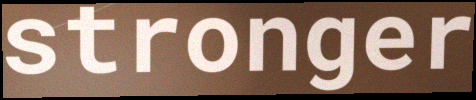
stronger